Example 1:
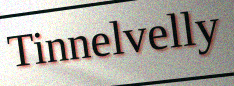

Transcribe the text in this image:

Tinnelvelly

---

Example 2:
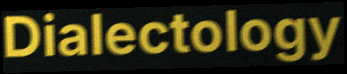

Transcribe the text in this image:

Dialectology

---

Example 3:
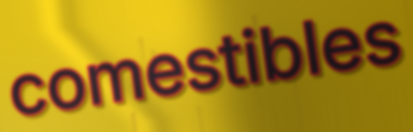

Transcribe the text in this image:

comestibles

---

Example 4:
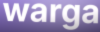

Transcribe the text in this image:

warga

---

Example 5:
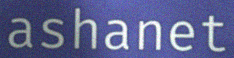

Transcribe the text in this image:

ashanet